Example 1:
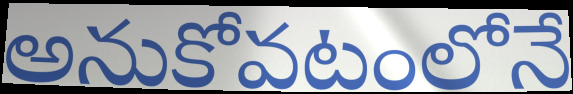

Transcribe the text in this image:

అనుకోవటంలోనే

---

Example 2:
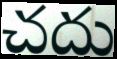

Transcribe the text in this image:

చదు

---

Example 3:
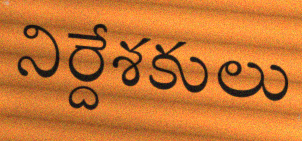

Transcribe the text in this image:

నిర్దేశకులు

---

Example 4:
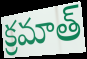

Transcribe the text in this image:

క్రమాత్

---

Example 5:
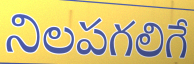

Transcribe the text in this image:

నిలపగలిగే